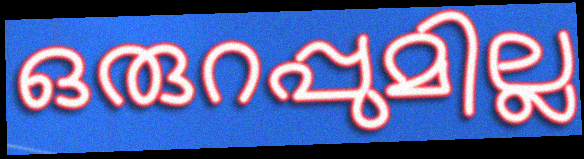
ഒരുറപ്പുമില്ല